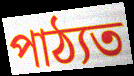
পাঠ্যত